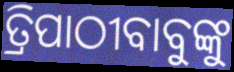
ତ୍ରିପାଠୀବାବୁଙ୍କୁ